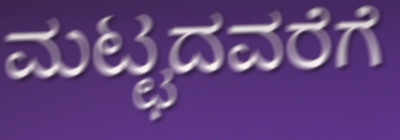
ಮಟ್ಟದವರೆಗೆ